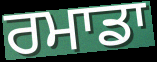
ਰਮਾਡਾ